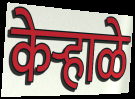
केऱ्हाळे